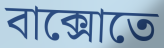
বাক্সোতে